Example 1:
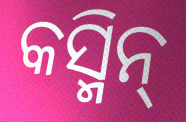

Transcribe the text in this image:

କସ୍ମିନ୍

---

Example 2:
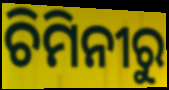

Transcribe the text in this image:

ଚିମିନୀରୁ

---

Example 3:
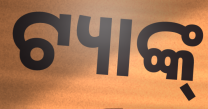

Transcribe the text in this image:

ଟ୍ୟାଙ୍କ୍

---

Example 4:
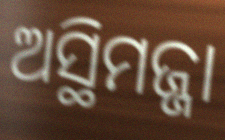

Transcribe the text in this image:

ଅସ୍ଥିମଜ୍ଜା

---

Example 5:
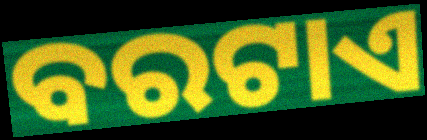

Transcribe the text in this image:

ବରଟାଏ